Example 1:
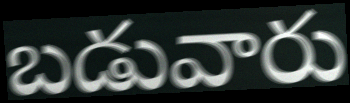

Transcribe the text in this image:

బడువారు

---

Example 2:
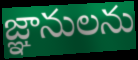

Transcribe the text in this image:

జ్ఞానులను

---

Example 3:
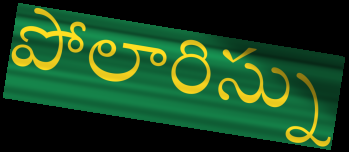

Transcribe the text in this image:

పోలారిస్ను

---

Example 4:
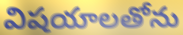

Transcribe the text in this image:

విషయాలతోను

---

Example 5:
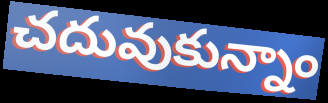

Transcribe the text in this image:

చదువుకున్నాం